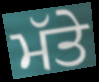
ਮੱਤੇ